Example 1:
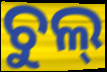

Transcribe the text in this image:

ଚୁଲ୍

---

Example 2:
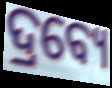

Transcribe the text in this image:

ଦ୍ରବ୍ୟେ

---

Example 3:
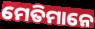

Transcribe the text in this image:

ମେତିମାନେ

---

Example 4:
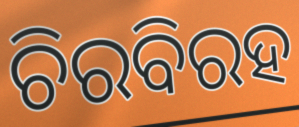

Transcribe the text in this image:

ଚିରବିରହ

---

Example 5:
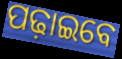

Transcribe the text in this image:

ପଢ଼ାଇବେ